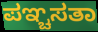
ಪಞ್ಚಸತಾ